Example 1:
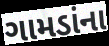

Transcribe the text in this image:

ગામડાંના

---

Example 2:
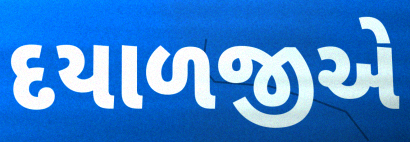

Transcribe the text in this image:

દયાળજીએ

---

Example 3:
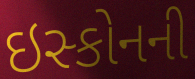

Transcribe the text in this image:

ઇસ્કોનની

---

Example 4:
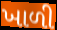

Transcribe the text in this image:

ખાળી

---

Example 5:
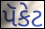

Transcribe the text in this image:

પૅકેટ